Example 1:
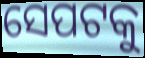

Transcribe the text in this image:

ସେପଟକୁ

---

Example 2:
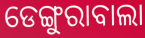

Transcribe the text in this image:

ଡେଙ୍ଗୁରାବାଲା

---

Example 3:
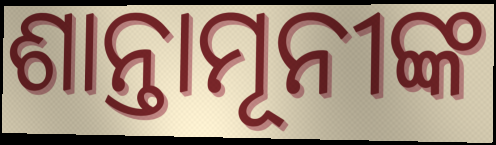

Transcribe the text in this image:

ଶାନ୍ତାମୂନୀଙ୍କ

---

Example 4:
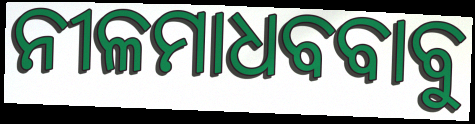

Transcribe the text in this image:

ନୀଳମାଧବବାବୁ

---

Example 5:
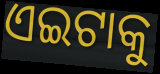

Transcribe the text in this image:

ଏଇଟାକୁ